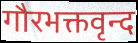
गौरभक्तवृन्द